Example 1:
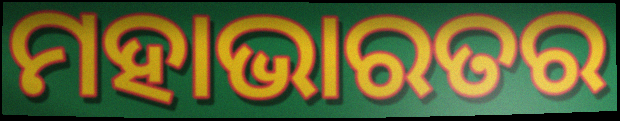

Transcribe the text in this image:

ମହାଭାରତର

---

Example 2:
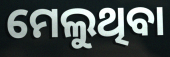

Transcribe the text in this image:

ମେଲୁଥିବା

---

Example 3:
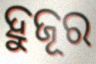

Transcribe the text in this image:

ହୁଜୂର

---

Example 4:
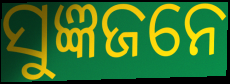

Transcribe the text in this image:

ସୁଜ୍ଞଜନେ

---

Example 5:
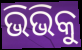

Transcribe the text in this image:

ଭିଭିକୁ